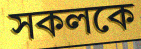
সকলকে